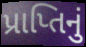
પ્રાપ્તિનું